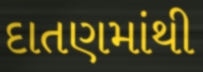
દાતણમાંથી